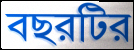
বছরটির